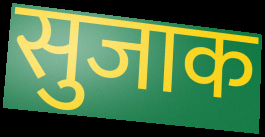
सुजाक